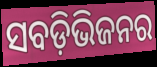
ସବଡ଼ିଭିଜନର